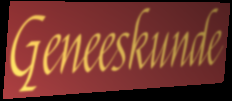
Geneeskunde